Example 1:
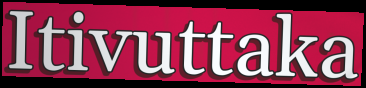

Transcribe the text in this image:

Itivuttaka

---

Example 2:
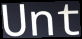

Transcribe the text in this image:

Unt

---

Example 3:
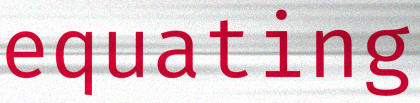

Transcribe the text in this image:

equating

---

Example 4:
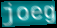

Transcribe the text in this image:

joeg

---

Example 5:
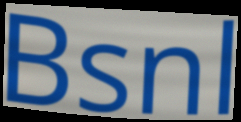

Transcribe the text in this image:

Bsnl